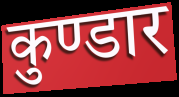
कुण्डार